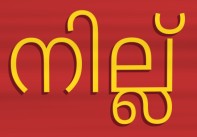
നില്ല്